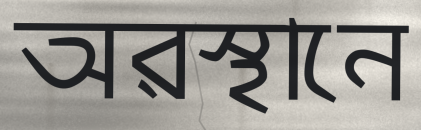
অৱস্থানে